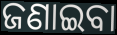
ଜଣାଇବା